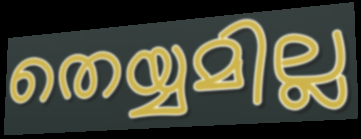
തെയ്യമില്ല